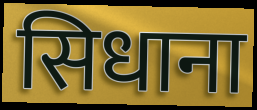
सिधाना